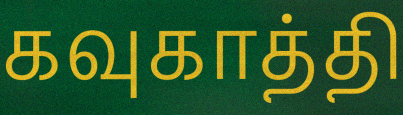
கவுகாத்தி